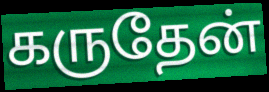
கருதேன்